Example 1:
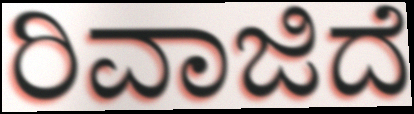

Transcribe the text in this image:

ರಿವಾಜಿದೆ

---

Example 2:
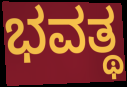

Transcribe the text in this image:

ಭವತ್ಥ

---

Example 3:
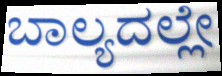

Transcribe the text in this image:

ಬಾಲ್ಯದಲ್ಲೇ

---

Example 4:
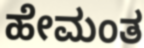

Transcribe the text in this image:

ಹೇಮಂತ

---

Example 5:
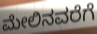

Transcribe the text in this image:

ಮೇಲಿನವರೆಗೆ